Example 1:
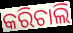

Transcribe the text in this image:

କରିଚାଲି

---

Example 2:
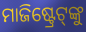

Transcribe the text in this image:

ମାଜିଷ୍ଟ୍ରେଟ୍‌ଙ୍କୁ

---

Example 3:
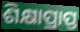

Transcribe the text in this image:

ଶିକ୍ଷାପ୍ରାପ୍ତ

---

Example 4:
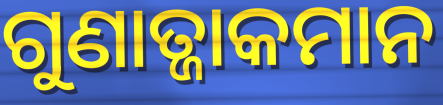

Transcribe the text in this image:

ଗୁଣାତ୍ଜାକମାନ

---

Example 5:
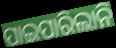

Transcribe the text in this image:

ପାଇପାରିଲାନି